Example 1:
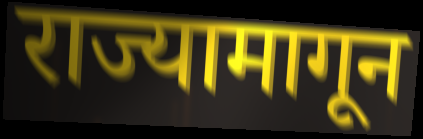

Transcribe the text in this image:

राज्यामागून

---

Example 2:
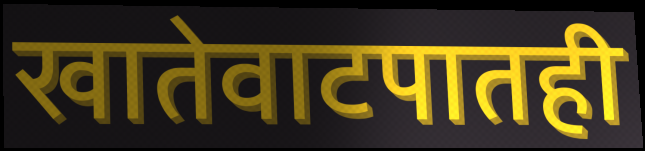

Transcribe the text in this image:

खातेवाटपातही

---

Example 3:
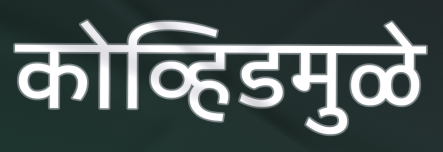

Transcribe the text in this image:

कोव्हिडमुळे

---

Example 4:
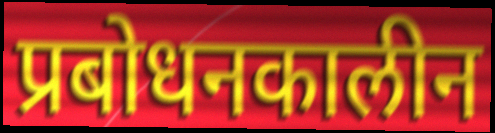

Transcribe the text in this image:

प्रबोधनकालीन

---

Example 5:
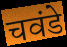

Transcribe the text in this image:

चवंडे